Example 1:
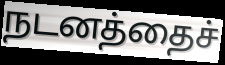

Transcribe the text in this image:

நடனத்தைச்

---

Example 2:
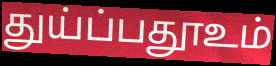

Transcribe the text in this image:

துய்ப்பதூஉம்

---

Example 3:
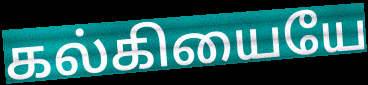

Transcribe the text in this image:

கல்கியையே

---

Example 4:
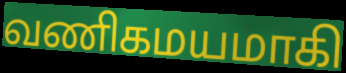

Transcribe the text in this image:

வணிகமயமாகி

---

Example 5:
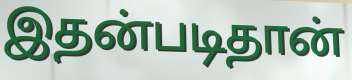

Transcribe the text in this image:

இதன்படிதான்